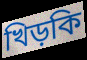
খিড়কি